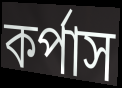
কর্পাস